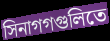
সিনাগগগুলিতে